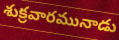
శుక్రవారమునాడు